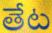
తేట